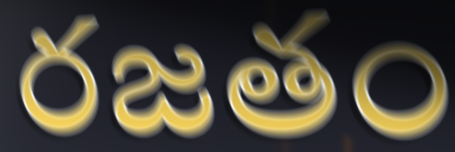
రజతం